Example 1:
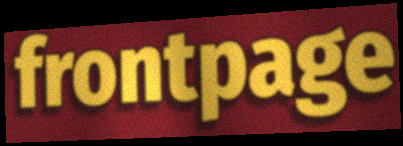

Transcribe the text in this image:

frontpage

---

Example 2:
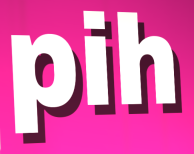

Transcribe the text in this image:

pih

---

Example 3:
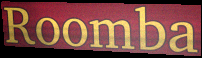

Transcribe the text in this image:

Roomba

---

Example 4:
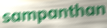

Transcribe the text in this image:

sampanthan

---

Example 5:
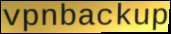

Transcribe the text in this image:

vpnbackup